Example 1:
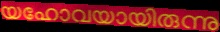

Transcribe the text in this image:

യഹോവയായിരുന്നു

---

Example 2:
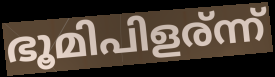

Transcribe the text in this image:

ഭൂമിപിളര്ന്ന്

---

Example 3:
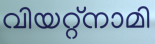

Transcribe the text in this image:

വിയറ്റ്നാമി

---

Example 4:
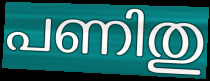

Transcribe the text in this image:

പണിതു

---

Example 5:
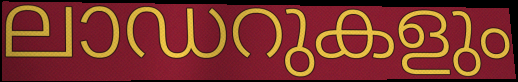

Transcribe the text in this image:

ലാഡറുകളും